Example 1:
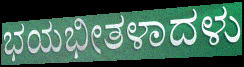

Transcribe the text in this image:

ಭಯಭೀತಳಾದಳು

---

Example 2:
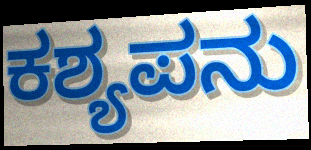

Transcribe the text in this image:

ಕಶ್ಯಪನು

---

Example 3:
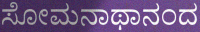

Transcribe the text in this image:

ಸೋಮನಾಥಾನಂದ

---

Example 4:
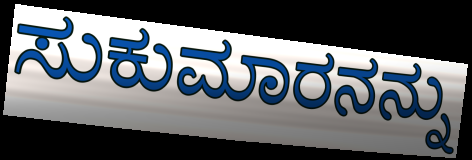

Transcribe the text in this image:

ಸುಕುಮಾರನನ್ನು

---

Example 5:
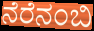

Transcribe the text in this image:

ನೆರೆನಂಬಿ